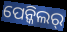
ପେନ୍କିଲର୍